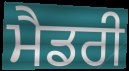
ਮੈਡਰੀ